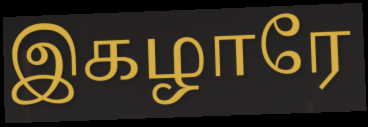
இகழாரே